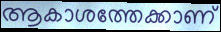
ആകാശത്തേക്കാണ്